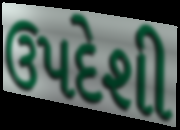
ઉપદેશી